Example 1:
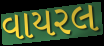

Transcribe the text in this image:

વાયરલ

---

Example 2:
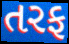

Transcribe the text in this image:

તરફ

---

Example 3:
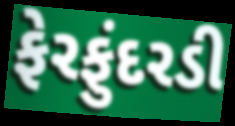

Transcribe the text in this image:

ફેરફુંદરડી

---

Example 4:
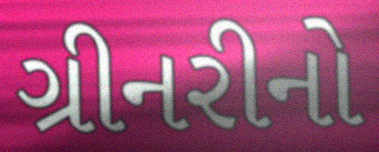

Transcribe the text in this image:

ગ્રીનરીનો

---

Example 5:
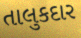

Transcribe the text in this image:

તાલુકદાર